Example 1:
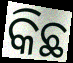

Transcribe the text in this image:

କିଛ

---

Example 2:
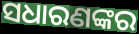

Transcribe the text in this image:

ସଧାରଣଙ୍କର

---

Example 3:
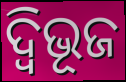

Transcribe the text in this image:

ଦ୍ବିଭୂଜ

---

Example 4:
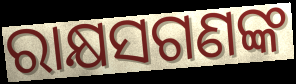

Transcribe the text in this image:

ରାକ୍ଷସଗଣଙ୍କ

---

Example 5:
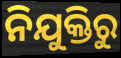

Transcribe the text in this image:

ନିଯୁକ୍ତିରୁ